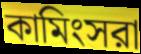
কামিংসরা